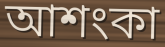
আশংকা